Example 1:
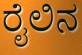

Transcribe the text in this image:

ರೈಲಿನ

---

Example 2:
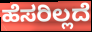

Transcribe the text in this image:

ಹೆಸರಿಲ್ಲದೆ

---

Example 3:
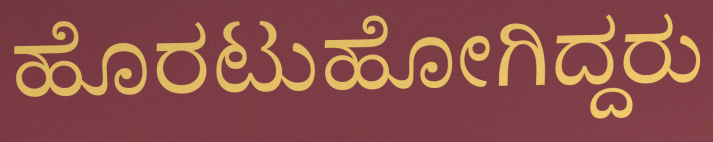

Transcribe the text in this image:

ಹೊರಟುಹೋಗಿದ್ದರು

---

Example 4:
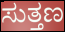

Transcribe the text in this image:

ಸುತ್ತಣ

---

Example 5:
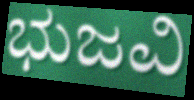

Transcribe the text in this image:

ಭುಜವಿ